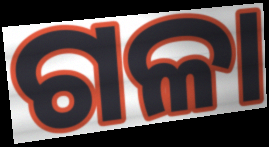
ଗଳା